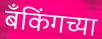
बँकिंगच्या